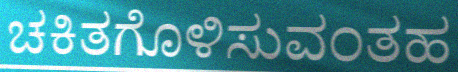
ಚಕಿತಗೊಳಿಸುವಂತಹ